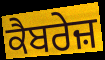
ਕੈਬਰੇਜ਼